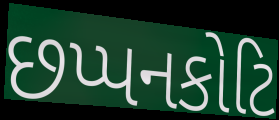
છપ્પનકોટિ